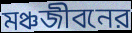
মঞ্চজীবনের